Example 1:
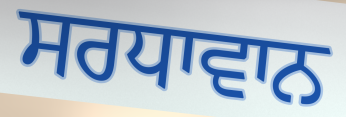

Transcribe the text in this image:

ਸਰਧਾਵਾਨ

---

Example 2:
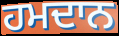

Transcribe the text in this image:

ਹਮਦਾਨ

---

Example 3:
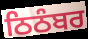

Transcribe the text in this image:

ਠਿਠੰਬਰ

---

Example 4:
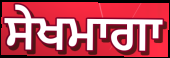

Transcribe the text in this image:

ਸੇਖਮਾਗਾ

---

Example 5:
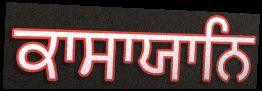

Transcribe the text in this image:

ਕਾਸਾਯਾਨਿ